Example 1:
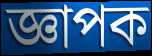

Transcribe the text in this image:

জ্ঞাপক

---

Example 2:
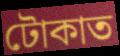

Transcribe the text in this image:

টোকাত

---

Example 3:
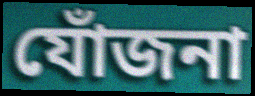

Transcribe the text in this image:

যোঁজনা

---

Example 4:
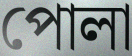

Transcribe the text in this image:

পোলা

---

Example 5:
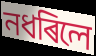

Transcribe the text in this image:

নধৰিলে